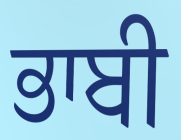
ਭਾਬੀ